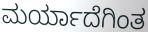
ಮರ್ಯಾದೆಗಿಂತ